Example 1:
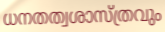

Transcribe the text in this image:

ധനതത്വശാസ്ത്രവും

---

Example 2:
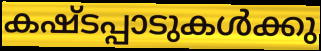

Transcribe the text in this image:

കഷ്ടപ്പാടുകൾക്കു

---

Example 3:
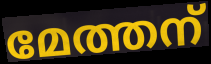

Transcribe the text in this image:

മേത്തന്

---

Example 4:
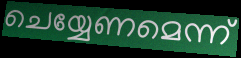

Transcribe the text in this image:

ചെയ്യേണമെന്ന്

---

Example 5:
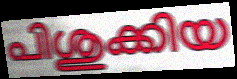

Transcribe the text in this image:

പിശുക്കിയ